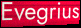
Evegrius